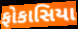
ફોકાસિયા